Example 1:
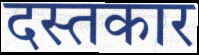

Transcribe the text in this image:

दस्‍तकार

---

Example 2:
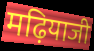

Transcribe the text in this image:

मढ़ियाजी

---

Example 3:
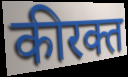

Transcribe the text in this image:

कीरक्त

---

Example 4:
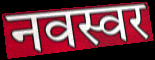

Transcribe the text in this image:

नवस्वर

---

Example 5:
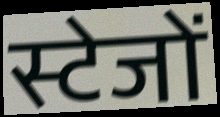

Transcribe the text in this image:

स्टेजों